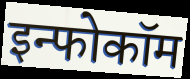
इन्फोकॉम